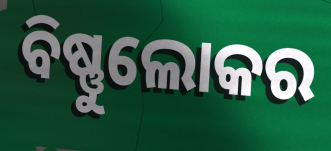
ବିଷ୍ଣୁଲୋକର